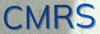
CMRS